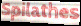
Spilathes